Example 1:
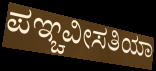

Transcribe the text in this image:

ಪಞ್ಚವೀಸತಿಯಾ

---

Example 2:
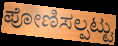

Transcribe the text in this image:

ಪೋಣಿಸಲ್ಪಟ್ಟು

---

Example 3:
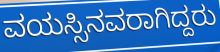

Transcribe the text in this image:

ವಯಸ್ಸಿನವರಾಗಿದ್ದರು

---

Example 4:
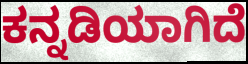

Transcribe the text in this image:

ಕನ್ನಡಿಯಾಗಿದೆ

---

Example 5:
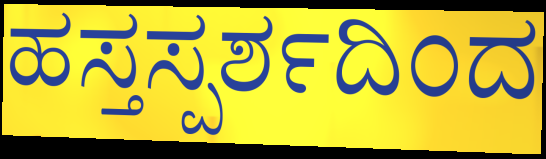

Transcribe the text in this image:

ಹಸ್ತಸ್ಪರ್ಶದಿಂದ